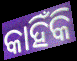
କାହିଁକି